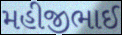
મહીજીભાઈ